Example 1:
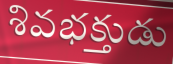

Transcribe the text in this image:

శివభక్తుడు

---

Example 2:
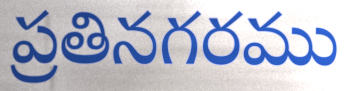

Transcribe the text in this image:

ప్రతినగరము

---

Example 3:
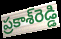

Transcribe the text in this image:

ప్రకాశ్‌రెడ్డి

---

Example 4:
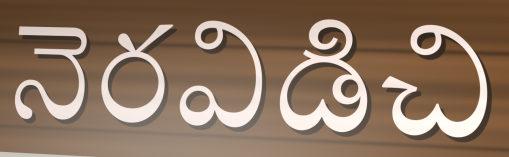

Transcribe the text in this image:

నెరవిడిచి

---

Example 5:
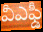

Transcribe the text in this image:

వీఎఫ్డీ